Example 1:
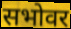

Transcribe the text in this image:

सभोवर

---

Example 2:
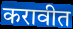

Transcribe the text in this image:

करावीत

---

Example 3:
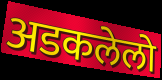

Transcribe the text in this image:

अडकलेलो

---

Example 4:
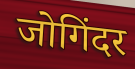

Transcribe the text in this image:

जोगिंदर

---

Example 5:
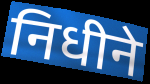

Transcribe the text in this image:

निधीने